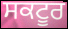
ਸਕਟੂਰ